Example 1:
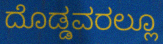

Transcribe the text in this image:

ದೊಡ್ಡವರಲ್ಲೂ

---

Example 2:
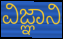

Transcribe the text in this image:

ವಿಜ್ಞಾನಿ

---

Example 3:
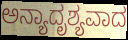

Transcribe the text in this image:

ಅನ್ಯಾದೃಶ್ಯವಾದ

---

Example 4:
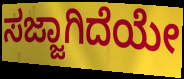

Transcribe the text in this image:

ಸಜ್ಜಾಗಿದೆಯೇ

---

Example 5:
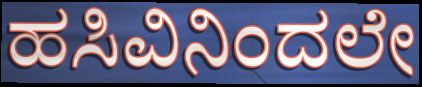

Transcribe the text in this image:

ಹಸಿವಿನಿಂದಲೇ